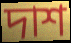
দাশ